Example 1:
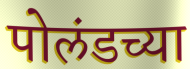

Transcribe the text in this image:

पोलंडच्या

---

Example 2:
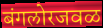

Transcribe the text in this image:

बंगलोरजवळ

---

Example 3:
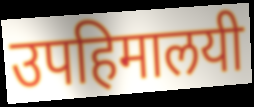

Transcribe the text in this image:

उपहिमालयी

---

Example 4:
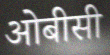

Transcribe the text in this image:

ओबीसी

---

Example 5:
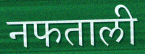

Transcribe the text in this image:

नफताली